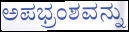
ಅಪಭ್ರಂಶವನ್ನು